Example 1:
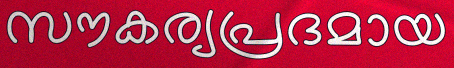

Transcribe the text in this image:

സൗകര്യപ്രദമായ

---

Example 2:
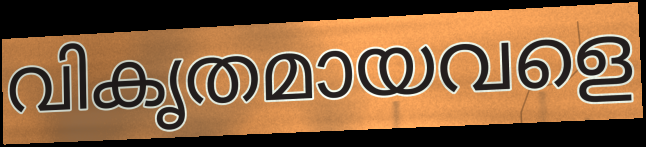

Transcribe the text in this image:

വികൃതമായവളെ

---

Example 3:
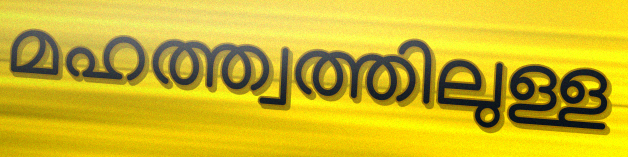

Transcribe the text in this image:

മഹത്ത്വത്തിലുള്ള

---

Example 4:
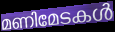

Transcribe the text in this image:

മണിമേടകൾ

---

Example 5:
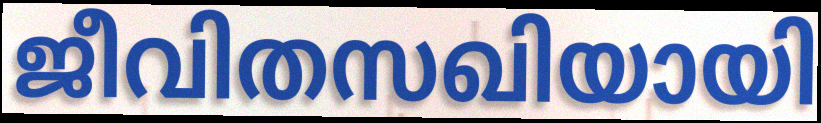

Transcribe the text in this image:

ജീവിതസഖിയായി